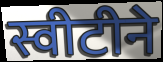
स्वीटीने